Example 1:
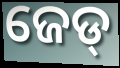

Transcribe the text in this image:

ଜେଡ୍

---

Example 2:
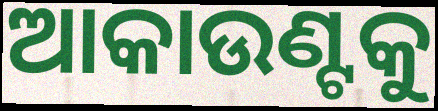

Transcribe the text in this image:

ଆକାଉଣ୍ଟକୁ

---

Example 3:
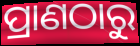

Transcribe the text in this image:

ପ୍ରାଣଠାରୁ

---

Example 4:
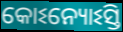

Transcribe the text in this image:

କୋଽନ୍ୟୋଽସ୍ତି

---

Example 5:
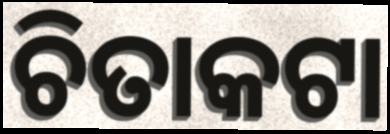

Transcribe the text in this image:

ଚିତାକଟା